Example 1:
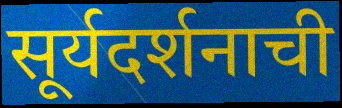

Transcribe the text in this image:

सूर्यदर्शनाची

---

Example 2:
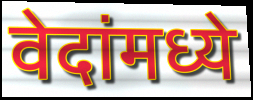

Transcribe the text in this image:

वेदांमध्ये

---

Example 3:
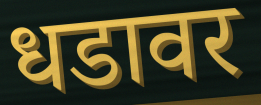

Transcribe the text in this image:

धडावर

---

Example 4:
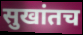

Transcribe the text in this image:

सुखांतच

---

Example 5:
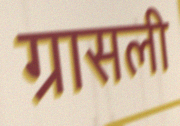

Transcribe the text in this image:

ग्रासली